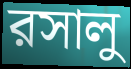
রসালু